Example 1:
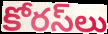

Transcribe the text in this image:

కోరస్‌లు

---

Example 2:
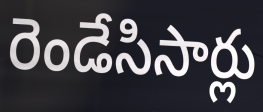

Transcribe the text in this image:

రెండేసిసార్లు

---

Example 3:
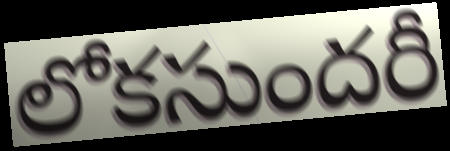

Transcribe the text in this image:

లోకసుందరీ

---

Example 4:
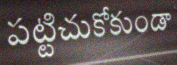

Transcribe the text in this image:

పట్టిచుకోకుండా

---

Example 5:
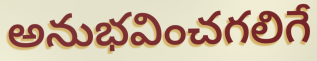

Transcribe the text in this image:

అనుభవించగలిగే